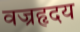
वज्रहृदय